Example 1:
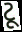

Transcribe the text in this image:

ટૂ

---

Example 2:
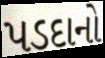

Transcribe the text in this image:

પડદાનો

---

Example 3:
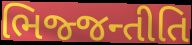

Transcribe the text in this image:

ભિજ્જન્તીતિ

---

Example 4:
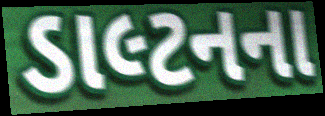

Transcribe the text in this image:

ડાલ્ટનના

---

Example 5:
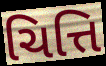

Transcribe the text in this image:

ચિત્તિ